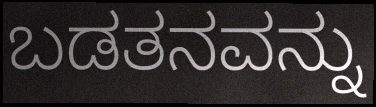
ಬಡತನವನ್ನು